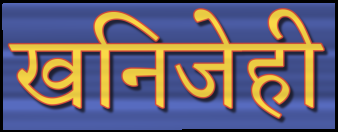
खनिजेही